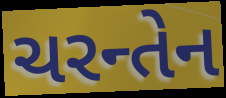
ચરન્તેન